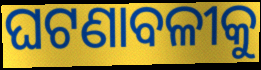
ଘଟଣାବଳୀକୁ